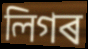
লিগৰ